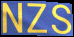
NZS